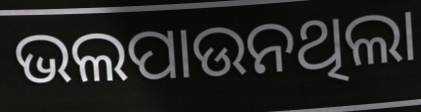
ଭଲପାଉନଥିଲା